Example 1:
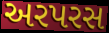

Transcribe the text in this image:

અરપરસ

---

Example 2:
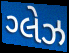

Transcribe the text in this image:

ગ્લેઝ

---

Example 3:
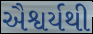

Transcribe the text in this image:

ઐશ્વર્યથી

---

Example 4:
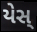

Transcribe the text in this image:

યેસ્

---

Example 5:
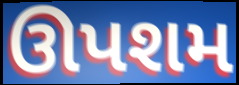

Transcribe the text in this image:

ઊપશમ